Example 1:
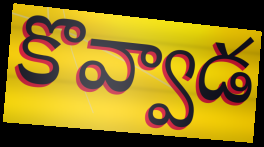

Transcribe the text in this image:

కొవ్వాడ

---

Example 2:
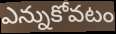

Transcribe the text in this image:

ఎన్నుకోవటం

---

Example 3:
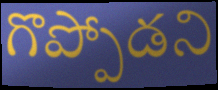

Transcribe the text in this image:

గొప్పోడని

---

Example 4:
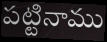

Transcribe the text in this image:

పట్టినాము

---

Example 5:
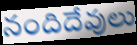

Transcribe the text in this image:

నందిదేవులు